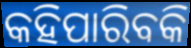
କହିପାରିବକି